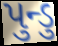
પુન્ડુ